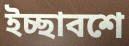
ইচ্ছাবশে